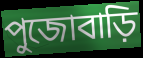
পুজোবাড়ি